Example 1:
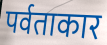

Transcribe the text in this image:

पर्वताकार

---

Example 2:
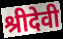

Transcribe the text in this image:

श्रीदेवी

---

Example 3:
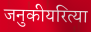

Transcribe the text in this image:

जनुकीयरित्या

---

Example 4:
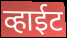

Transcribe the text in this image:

व्हाईट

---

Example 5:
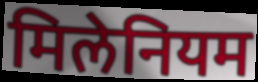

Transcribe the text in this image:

मिलेनियम